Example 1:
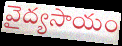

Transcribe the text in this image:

వైద్యసాయం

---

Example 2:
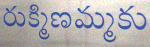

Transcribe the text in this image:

రుక్మిణమ్మకు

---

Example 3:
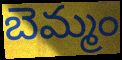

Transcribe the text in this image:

బెమ్మం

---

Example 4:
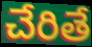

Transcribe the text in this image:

చేరితే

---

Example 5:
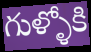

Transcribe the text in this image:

గుళ్ళోకి